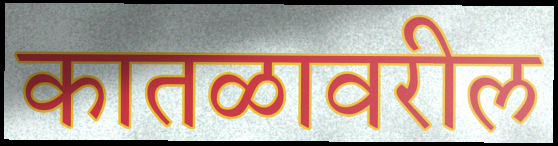
कातळावरील